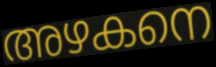
അഴകനെ